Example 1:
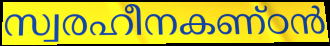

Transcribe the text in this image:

സ്വരഹീനകണ്ഠൻ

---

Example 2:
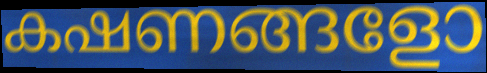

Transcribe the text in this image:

കഷണങ്ങളോ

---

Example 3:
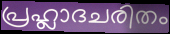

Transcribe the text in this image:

പ്രഹ്ലാദചരിതം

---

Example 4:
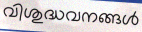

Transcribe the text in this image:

വിശുദ്ധവനങ്ങൾ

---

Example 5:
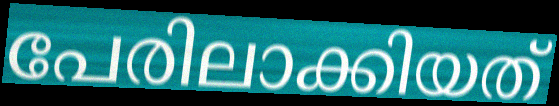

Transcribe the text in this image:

പേരിലാക്കിയത്